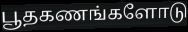
பூதகணங்களோடு